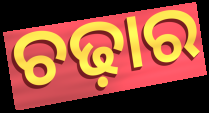
ଚଢ଼ାର